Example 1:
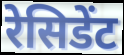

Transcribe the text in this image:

रेसिडेंट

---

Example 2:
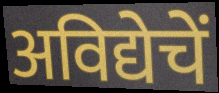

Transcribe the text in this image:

अविद्येचें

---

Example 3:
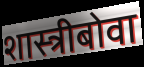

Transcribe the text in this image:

शास्त्रीबोवा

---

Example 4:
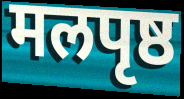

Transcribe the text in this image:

मलपृष्ठ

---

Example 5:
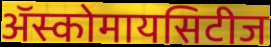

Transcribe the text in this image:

ॲस्कोमायसिटीज